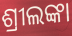
ଶ୍ରୀଲଙ୍କା